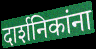
दार्शनिकांना